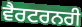
ਵੈਰਟਰਨਰੀ